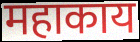
महाकाय